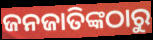
ଜନଜାତିଙ୍କଠାରୁ